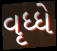
વૃધ્ધે